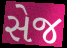
સેજ